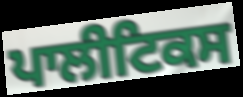
ਪਾਲੀਟਿਕਸ